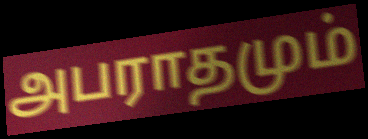
அபராதமும்